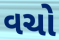
વચો